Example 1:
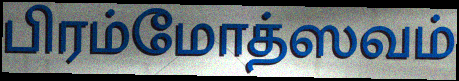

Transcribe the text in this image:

பிரம்மோத்ஸவம்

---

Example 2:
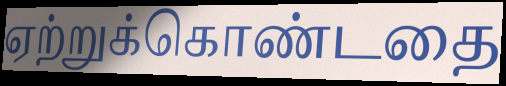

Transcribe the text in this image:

ஏற்றுக்கொண்டதை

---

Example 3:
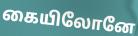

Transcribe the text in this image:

கையிலோனே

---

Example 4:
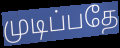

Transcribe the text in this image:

முடிப்பதே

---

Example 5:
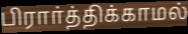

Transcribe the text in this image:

பிரார்த்திக்காமல்